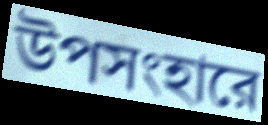
উপসংহারে